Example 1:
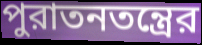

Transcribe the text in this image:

পুরাতনতন্ত্রের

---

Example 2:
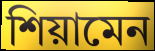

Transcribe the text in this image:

শিয়ামেন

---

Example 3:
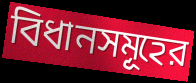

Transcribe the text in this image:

বিধানসমূহের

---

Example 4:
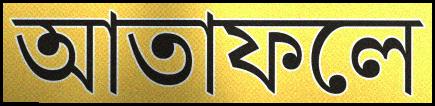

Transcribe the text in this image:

আতাফলে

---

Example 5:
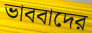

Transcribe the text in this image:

ভাববাদের